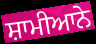
ਸ਼ਾਮੀਆਨੇ